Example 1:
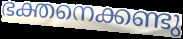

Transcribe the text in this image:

ഭക്തനെക്കണ്ടു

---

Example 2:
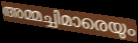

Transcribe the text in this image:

അമ്മച്ചിമാരെയും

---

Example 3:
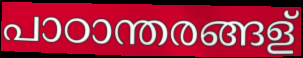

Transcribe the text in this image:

പാഠാന്തരങ്ങള്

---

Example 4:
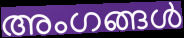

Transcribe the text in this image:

അംഗങ്ങൾ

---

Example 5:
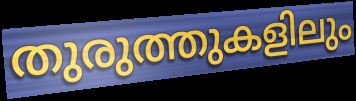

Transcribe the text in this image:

തുരുത്തുകളിലും